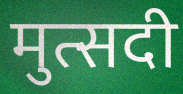
मुत्सदी